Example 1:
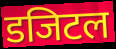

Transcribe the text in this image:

डजिटल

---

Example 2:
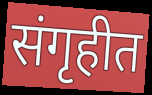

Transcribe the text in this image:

संगृहीत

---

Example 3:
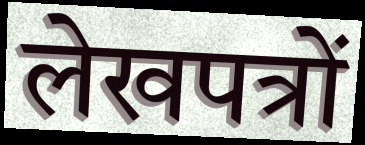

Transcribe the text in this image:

लेखपत्रों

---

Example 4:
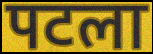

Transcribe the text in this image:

पटला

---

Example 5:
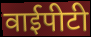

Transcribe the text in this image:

वाईपीटी